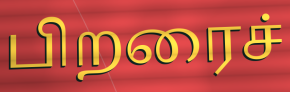
பிறரைச்